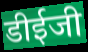
डीईजी